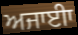
ਅਜਾਈਾ